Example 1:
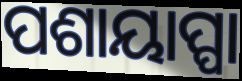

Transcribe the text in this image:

ପଶାୟାପ୍ପା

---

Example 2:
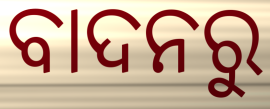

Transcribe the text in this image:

ବାଦନରୁ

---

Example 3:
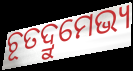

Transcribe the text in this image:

ଚୂତଦ୍ରୁମେଭ୍ୟ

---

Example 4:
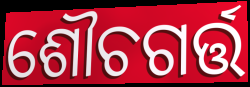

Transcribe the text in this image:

ଶୌଚଗର୍ତ୍ତ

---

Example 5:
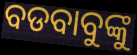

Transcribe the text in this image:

ବଡବାବୁଙ୍କୁ